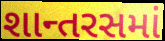
શાન્તરસમાં